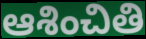
ఆశించితి